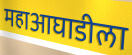
महाआघाडीला